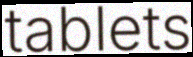
tablets